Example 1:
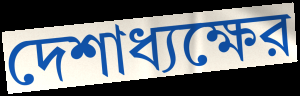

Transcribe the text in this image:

দেশাধ্যক্ষের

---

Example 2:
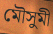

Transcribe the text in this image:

মৌসুমী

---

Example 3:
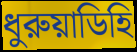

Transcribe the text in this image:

ধুরুয়াডিহি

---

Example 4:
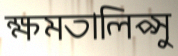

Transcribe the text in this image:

ক্ষমতালিপ্সু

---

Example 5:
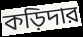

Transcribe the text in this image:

কড়িদার